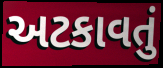
અટકાવતું